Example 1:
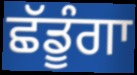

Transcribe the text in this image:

ਛੱਡੂੰਗਾ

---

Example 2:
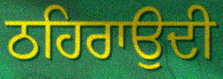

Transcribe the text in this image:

ਠਹਿਰਾਉਦੀ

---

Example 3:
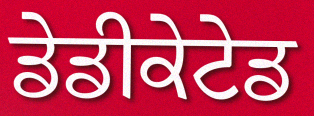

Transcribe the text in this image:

ਡੇਡੀਕੇਟੇਡ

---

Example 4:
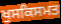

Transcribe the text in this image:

ਖੁਸਕਿਸਮਤ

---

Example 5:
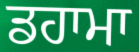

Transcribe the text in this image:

ਡਹਾਮਾ